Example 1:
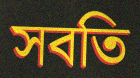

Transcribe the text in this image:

সবতি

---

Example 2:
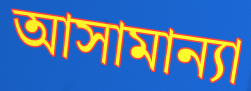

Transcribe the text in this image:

আসামান্যা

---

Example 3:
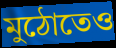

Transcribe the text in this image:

মুঠোতেও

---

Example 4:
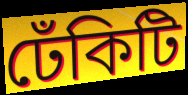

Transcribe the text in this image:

ঢেঁকিটি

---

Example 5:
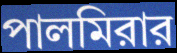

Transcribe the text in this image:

পালমিরার